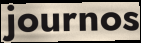
journos